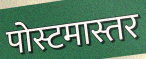
पोस्टमास्तर